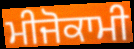
ਮੀਜੋਕਾਮੀ